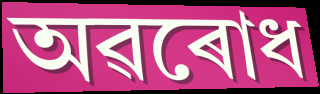
অৱৰোধ